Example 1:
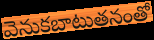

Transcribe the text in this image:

వెనుకబాటుతనంతో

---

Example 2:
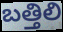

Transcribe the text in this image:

బత్తిలి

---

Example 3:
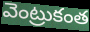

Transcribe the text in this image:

వెంట్రుకంత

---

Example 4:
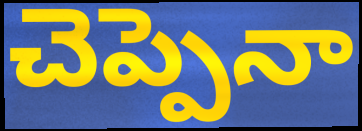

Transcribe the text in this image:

చెప్పెనా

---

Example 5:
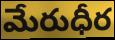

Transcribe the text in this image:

మేరుధీర